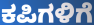
ಕಪಿಗಳಿಗೆ